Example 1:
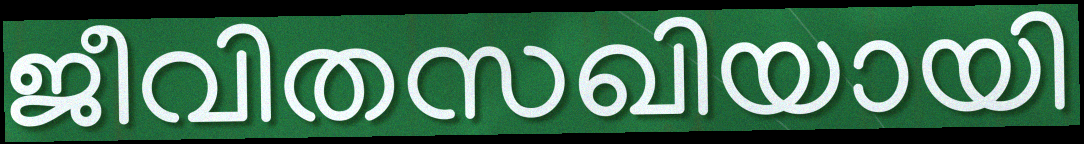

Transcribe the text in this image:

ജീവിതസഖിയായി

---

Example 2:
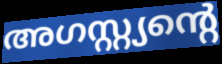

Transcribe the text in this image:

അഗസ്റ്റ്യന്റെ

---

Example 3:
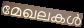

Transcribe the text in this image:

മേഖലകൾ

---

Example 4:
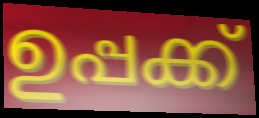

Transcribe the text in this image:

ഉപ്പക്ക്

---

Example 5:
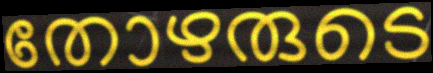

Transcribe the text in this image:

തോഴരുടെ